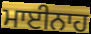
ਮਾਈਨਾਹ